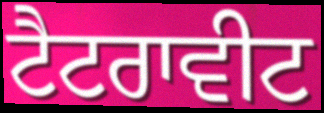
ਟੈਟਰਾਵੀਟ